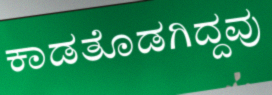
ಕಾಡತೊಡಗಿದ್ದವು